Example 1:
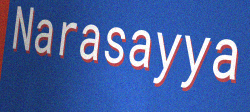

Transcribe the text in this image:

Narasayya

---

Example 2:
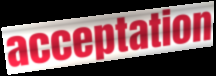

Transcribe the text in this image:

acceptation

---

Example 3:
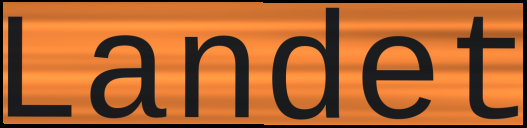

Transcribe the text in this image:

Landet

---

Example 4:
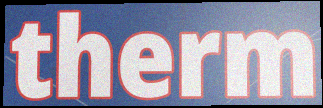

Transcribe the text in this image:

therm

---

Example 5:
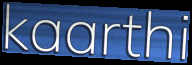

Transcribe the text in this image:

kaarthi